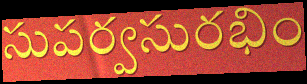
సుపర్వసురభిం